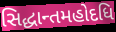
સિદ્ધાન્તમહોદધિ